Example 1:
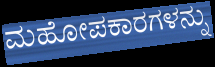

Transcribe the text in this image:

ಮಹೋಪಕಾರಗಳನ್ನು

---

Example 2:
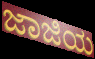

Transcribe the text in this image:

ಜಾಜಿಯ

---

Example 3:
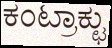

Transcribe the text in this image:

ಕಂಟ್ರಾಕ್ಟು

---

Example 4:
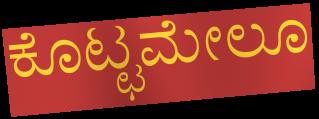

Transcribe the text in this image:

ಕೊಟ್ಟಮೇಲೂ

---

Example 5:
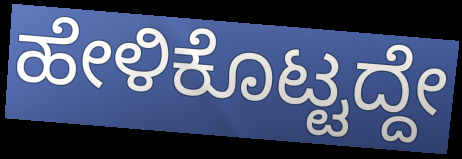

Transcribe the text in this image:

ಹೇಳಿಕೊಟ್ಟದ್ದೇ